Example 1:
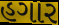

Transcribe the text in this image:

હગાર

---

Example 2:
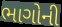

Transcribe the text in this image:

ભાગોની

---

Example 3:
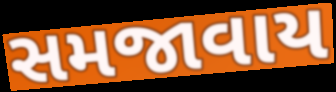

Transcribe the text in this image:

સમજાવાય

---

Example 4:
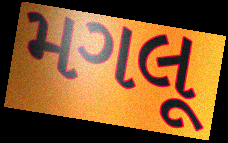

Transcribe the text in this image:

મગલૂ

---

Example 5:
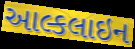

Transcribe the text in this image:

આલ્કલાઇન